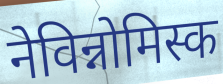
नेविन्नोमिस्क